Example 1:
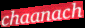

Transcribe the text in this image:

chaanach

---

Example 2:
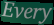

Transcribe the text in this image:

Every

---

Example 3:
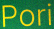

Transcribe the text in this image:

Pori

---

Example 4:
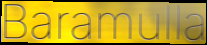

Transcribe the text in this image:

Baramulla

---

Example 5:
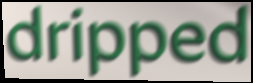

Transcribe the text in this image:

dripped